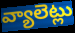
వ్యాలెట్లు